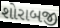
શોરાબજી